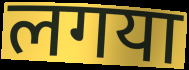
लगया